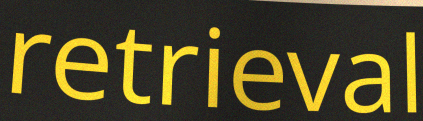
retrieval